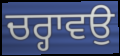
ਚਰ੍ਹਾਵਉ